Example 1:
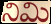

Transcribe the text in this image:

నిమి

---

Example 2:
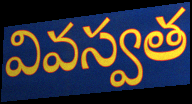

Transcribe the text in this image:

వివస్వత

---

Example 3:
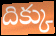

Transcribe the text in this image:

దిక్కు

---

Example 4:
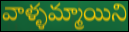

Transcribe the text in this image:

వాళ్ళమ్మాయిని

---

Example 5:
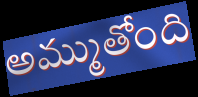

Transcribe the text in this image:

అమ్ముతోంది